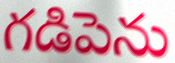
గడిపెను